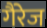
गैरेज